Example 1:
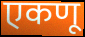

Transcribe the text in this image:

एकणू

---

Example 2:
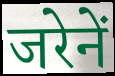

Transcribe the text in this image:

जरेनें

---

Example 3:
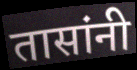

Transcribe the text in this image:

तासांनी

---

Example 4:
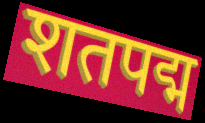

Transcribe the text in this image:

शतपद्म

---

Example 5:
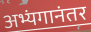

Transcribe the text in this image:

अभ्यंगानंतर